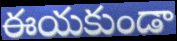
ఈయకుండా